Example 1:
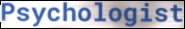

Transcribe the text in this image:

Psychologist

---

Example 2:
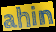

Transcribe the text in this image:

ahin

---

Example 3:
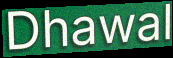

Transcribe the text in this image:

Dhawal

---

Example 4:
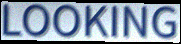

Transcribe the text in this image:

LOOKING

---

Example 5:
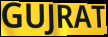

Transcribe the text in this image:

GUJRAT